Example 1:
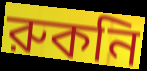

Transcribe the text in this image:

রুকনি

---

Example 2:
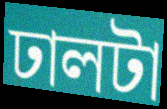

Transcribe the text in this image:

ঢালটা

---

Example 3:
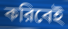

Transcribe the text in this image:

করিবেই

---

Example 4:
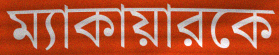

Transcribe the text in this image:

ম্যাকায়ারকে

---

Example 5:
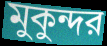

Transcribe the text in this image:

মুকুন্দর